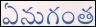
ఏనుగంత